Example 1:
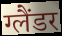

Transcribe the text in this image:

ग्लैंडर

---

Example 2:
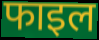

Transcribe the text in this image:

फाइल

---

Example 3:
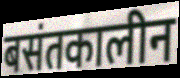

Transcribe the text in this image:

बसंतकालीन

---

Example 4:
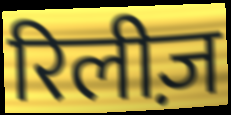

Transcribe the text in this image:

रिलीज़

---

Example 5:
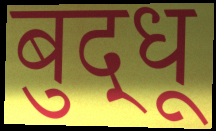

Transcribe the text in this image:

बुद्धू